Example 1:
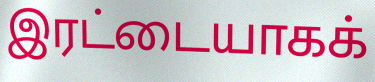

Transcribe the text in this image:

இரட்டையாகக்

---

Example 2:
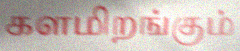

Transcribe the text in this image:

களமிறங்கும்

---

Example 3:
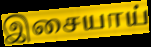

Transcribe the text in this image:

இசையாய்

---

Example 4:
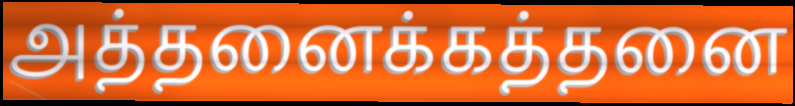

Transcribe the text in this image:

அத்தனைக்கத்தனை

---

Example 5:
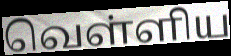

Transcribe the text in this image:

வெள்ளிய